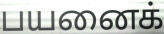
பயனைக்